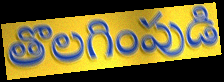
తొలగింపుడి